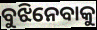
ବୁଝିନେବାକୁ